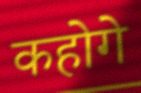
कहोगे